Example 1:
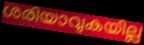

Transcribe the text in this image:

ശരിയാവുകയില്ല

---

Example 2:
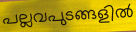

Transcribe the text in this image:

പല്ലവപുടങ്ങളിൽ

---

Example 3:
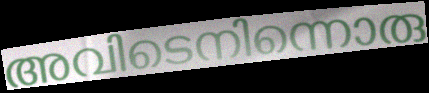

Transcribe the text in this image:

അവിടെനിന്നൊരു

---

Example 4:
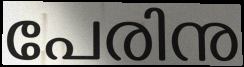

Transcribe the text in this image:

പേരിനു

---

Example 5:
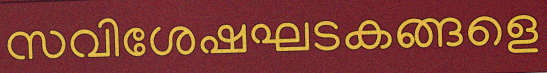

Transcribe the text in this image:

സവിശേഷഘടകങ്ങളെ